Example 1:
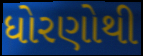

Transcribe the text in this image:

ધોરણોથી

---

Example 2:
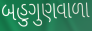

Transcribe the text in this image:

બહુગુણવાળા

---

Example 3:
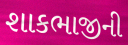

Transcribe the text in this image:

શાકભાજીની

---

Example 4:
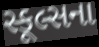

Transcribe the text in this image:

સ્કૂલ્સના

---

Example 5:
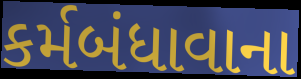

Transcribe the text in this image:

કર્મબંધાવાના